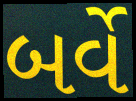
બર્વે